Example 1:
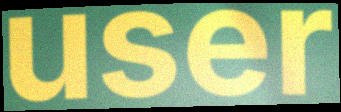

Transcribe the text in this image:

user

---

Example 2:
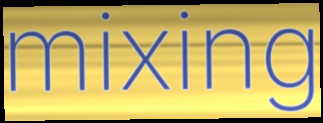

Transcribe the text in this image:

mixing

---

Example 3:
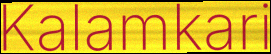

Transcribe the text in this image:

Kalamkari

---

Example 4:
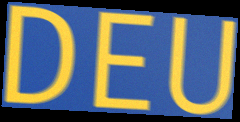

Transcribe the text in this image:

DEU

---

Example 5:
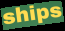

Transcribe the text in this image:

ships